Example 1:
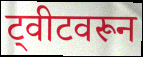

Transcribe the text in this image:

ट्वीटवरून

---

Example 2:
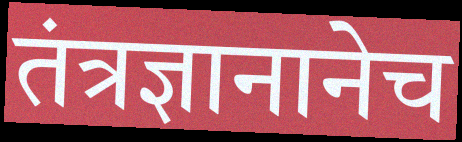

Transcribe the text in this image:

तंत्रज्ञानानेच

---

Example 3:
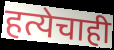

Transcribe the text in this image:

हत्येचाही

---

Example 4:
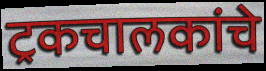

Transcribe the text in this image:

ट्रकचालकांचे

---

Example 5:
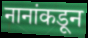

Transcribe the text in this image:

नानांकडून